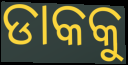
ଡାକକୁ